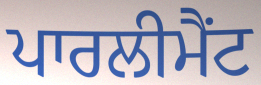
ਪਾਰਲੀਮੈਂਟ